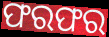
ଫରଫର